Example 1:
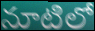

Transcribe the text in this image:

నూటిలో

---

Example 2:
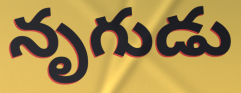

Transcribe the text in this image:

నృగుడు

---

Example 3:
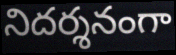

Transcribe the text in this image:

నిదర్శనంగా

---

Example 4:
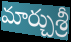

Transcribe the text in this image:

మార్చుశ్రీ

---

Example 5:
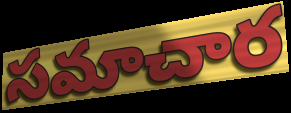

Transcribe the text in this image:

సమాచార